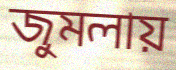
জুমলায়